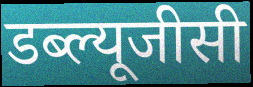
डब्ल्यूजीसी